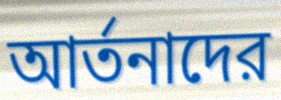
আর্তনাদের